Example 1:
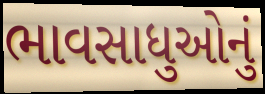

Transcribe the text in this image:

ભાવસાધુઓનું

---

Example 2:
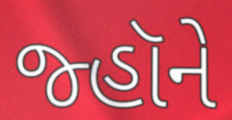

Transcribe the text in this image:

જ્હૉને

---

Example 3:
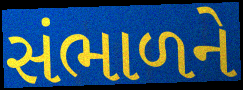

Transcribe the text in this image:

સંભાળને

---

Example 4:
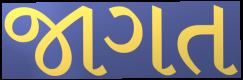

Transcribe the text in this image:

જાગત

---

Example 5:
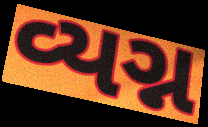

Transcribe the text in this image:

વ્યગ્ન